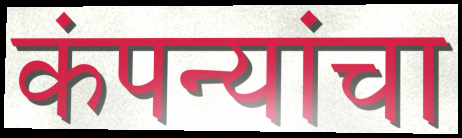
कंपन्यांचा